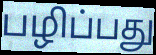
பழிப்பது